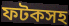
ফটকসহ